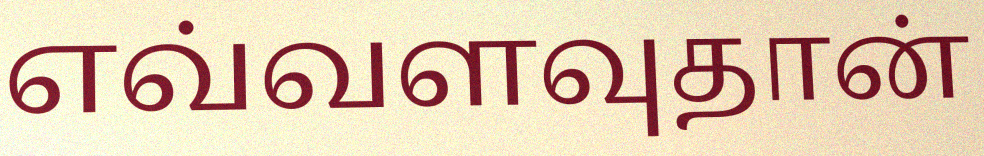
எவ்வளவுதான்